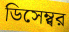
ডিসেম্ব্বর